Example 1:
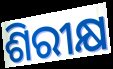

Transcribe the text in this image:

ଶିରୀକ୍ଷ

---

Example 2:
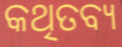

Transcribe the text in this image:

କଥିତବ୍ୟ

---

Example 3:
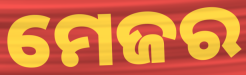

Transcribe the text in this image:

ମେଜର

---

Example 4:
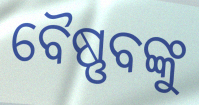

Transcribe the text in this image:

ବୈଷ୍ଣବଙ୍କୁ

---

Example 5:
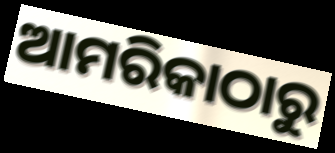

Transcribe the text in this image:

ଆମରିକାଠାରୁ